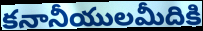
కనానీయులమీదికి